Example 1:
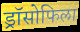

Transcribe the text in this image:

ड्रॉसोफिला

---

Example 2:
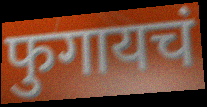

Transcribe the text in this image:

फुगायचं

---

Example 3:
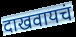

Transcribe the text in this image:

दाखवायचं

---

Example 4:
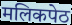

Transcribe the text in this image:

मलिकपेठ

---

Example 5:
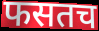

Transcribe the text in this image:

फसतच